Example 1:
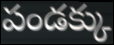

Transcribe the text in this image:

పండక్కు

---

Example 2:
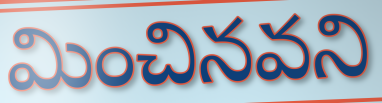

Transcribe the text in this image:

మించినవని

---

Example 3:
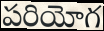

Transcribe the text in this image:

పరియోగ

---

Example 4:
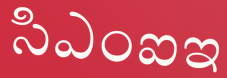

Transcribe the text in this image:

సిఎంఐఇ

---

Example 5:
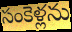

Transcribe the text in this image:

సంకెళ్లను